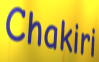
Chakiri